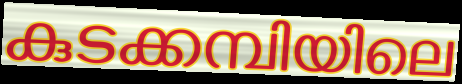
കുടക്കമ്പിയിലെ